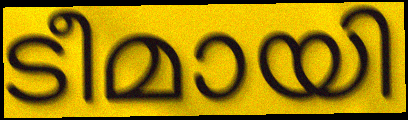
ടീമായി